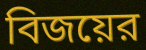
বিজয়ের